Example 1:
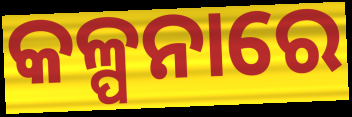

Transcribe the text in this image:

କଳ୍ପନାରେ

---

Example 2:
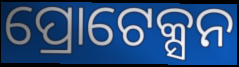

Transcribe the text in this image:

ପ୍ରୋଟେକ୍ସନ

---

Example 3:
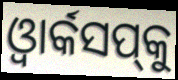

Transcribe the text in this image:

ଓ୍ୱାର୍କସପ୍‌କୁ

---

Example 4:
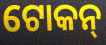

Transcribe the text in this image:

ଟୋକନ୍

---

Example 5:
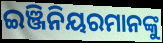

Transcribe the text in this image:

ଇଞ୍ଜିନିୟରମାନଙ୍କୁ